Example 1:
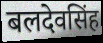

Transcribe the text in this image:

बलदेवसिंह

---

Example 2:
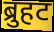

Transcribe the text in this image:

ब्रुहट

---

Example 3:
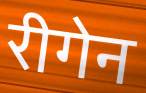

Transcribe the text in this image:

रीगेन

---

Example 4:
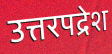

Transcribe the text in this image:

उत्तरपद्रेश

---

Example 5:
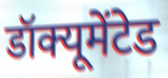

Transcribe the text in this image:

डॉक्यूमेंटेड